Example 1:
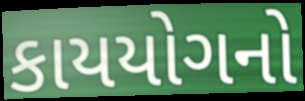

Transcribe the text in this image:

કાયયોગનો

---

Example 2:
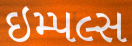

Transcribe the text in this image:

ઇમ્પલ્સ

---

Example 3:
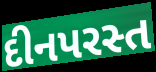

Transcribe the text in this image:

દીનપરસ્ત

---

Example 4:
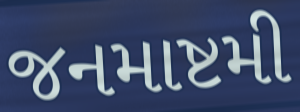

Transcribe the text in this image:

જનમાષ્ટમી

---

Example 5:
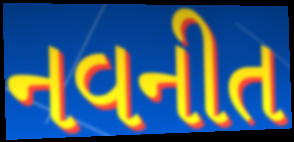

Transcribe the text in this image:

નવનીત